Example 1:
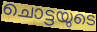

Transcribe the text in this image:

ചൊട്ടയുടെ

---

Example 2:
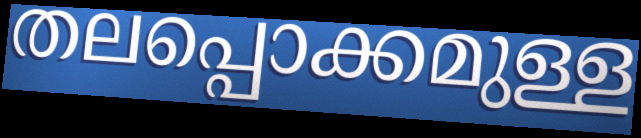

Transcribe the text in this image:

തലപ്പൊക്കമുള്ള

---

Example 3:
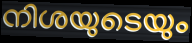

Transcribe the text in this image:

നിശയുടെയും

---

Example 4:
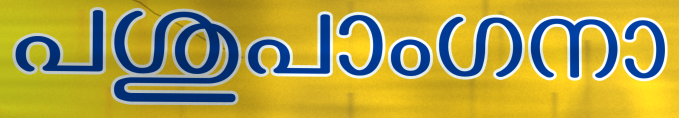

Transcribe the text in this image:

പശുപാംഗനാ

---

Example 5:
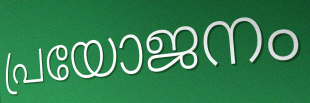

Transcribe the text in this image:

പ്രയോജനം